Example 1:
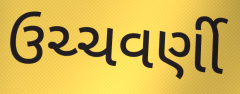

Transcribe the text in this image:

ઉચ્ચવર્ણી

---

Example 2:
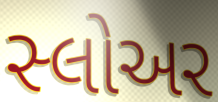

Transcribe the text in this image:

સ્લોઅર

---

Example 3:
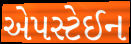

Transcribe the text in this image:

એપસ્ટેઈન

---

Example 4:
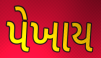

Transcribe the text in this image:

પેખાય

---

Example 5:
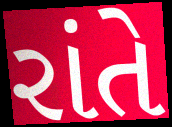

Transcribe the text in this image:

રાંતે